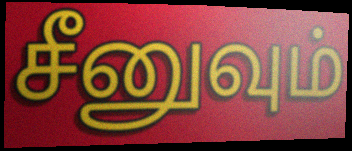
சீனுவும்